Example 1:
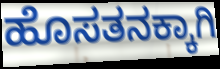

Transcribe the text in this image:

ಹೊಸತನಕ್ಕಾಗಿ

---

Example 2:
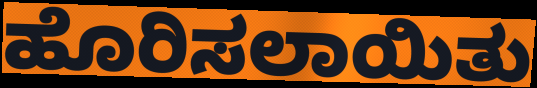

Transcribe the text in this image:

ಹೊರಿಸಲಾಯಿತು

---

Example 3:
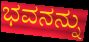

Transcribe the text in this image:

ಭವನನ್ನು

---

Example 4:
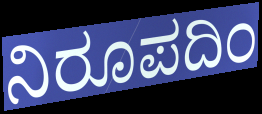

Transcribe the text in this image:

ನಿರೂಪದಿಂ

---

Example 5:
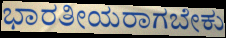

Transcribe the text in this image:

ಭಾರತೀಯರಾಗಬೇಕು